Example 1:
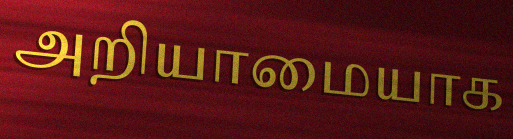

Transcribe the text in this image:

அறியாமையாக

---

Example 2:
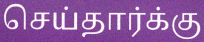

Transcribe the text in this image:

செய்தார்க்கு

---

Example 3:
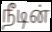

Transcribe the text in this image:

நீடின்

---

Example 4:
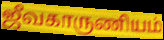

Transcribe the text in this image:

ஜீவகாருணியம்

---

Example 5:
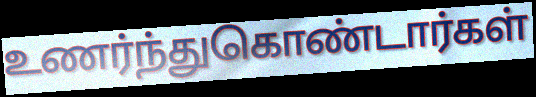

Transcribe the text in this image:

உணர்ந்துகொண்டார்கள்